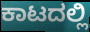
ಕಾಟದಲ್ಲಿ